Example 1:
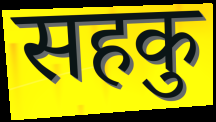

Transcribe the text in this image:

सहकु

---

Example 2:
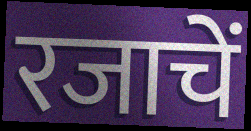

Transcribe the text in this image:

रजाचें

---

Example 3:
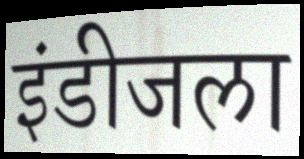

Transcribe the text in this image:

इंडीजला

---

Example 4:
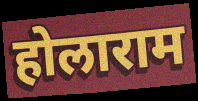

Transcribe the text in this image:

होलाराम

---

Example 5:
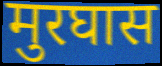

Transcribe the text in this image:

मुरघास